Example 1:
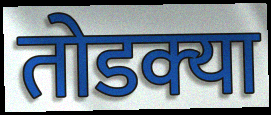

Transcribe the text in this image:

तोडक्‍या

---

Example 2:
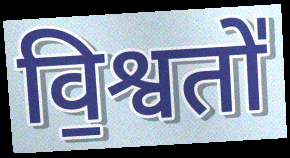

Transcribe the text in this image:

वि॒श्वतो॑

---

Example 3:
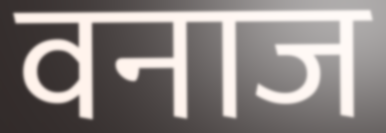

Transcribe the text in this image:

वनाज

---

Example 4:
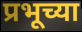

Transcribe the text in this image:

प्रभूच्या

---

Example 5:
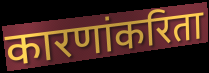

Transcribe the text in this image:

कारणांकरिता